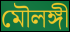
মৌলঙ্গী